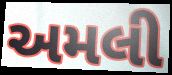
અમલી